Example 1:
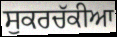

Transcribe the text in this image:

ਸੁਕਰਚੱਕੀਆ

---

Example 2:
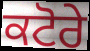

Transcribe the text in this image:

ਕਟੋਰੇ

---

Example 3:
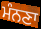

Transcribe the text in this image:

ਮੰਨਣਾ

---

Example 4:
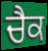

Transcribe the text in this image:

ਚੈਕ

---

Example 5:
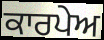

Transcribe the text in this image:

ਕਾਰਪੇਅ